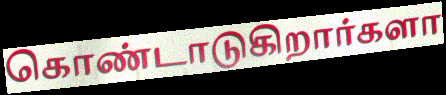
கொண்டாடுகிறார்களா